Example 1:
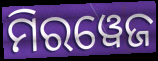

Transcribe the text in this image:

ମିରୱେଜ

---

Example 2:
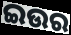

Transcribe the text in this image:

ଇଉର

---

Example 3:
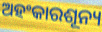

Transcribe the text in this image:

ଅହଂକାରଶୂନ୍ୟ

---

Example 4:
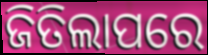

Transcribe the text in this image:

ଜିତିଲାପରେ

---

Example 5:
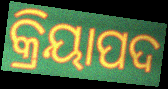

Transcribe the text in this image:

କ୍ରିୟାପଦ